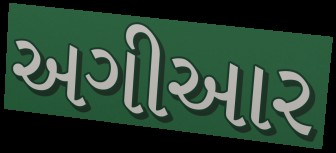
અગીઆર